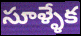
సూళ్ళేక